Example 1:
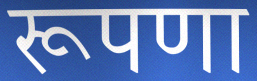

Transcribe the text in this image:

रूपणा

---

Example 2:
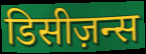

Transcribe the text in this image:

डिसीज़न्स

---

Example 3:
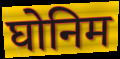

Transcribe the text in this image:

घोनिम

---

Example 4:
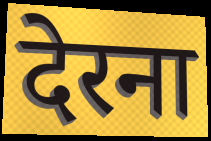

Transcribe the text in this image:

देरना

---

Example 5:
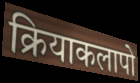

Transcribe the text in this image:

क्रियाकलापो